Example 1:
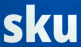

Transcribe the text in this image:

sku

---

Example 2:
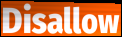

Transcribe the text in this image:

Disallow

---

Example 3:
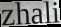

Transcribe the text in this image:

zhali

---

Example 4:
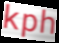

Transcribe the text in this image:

kph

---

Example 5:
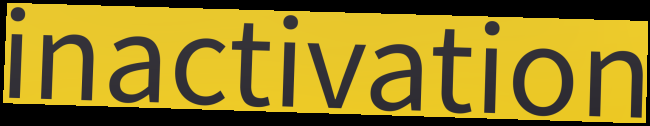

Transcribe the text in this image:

inactivation